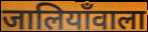
जालियाँवाला